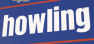
howling